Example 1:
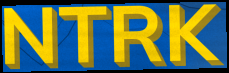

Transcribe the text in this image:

NTRK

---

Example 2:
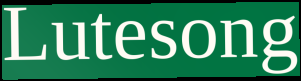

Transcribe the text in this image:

Lutesong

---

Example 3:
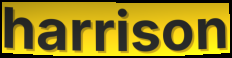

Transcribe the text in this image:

harrison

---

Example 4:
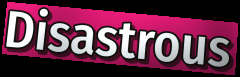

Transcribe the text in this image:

Disastrous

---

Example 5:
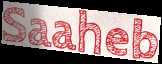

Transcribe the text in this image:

Saaheb